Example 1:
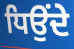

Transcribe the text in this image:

ਧਿਉਂਦੇ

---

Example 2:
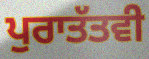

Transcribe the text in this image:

ਪੁਰਾਤੱਤਵੀ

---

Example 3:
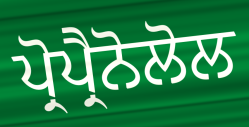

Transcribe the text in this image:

ਪ੍ਰੋਪ੍ਰੈਨੋਲੋਲ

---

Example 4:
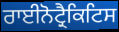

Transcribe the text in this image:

ਰਾਈਨੋਟ੍ਰੈਕਿਟਿਸ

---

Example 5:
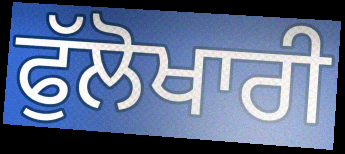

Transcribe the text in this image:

ਫੁੱਲੋਖਾਰੀ